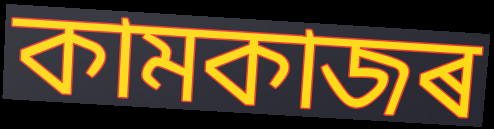
কামকাজৰ